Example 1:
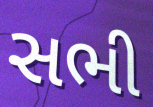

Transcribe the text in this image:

સભી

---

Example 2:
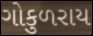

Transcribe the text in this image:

ગોકુળરાય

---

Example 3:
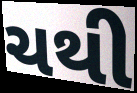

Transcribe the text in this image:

ચથી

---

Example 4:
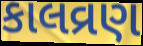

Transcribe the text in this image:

કાલવ્રણ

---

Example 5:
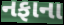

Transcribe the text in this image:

નફાના